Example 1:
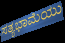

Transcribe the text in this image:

ಸತ್ಯಭಾಮೆಯು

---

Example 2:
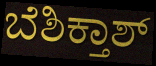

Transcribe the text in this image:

ಬೆಶಿಕ್ತಾಶ್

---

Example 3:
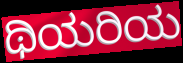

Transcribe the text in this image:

ಥಿಯರಿಯ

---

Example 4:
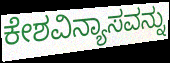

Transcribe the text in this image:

ಕೇಶವಿನ್ಯಾಸವನ್ನು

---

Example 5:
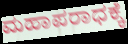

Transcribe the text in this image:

ಮಹಾಪರಾಧಕ್ಕೆ